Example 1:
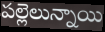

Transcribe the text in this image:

పల్లెలున్నాయి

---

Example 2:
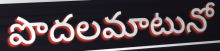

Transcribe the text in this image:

పొదలమాటునో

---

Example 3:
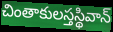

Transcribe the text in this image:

చింతాకులస్తస్థివాన్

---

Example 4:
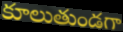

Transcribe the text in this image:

కూలుతుండగా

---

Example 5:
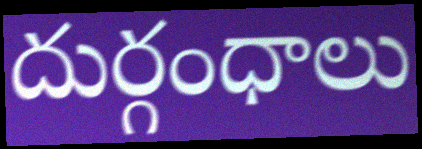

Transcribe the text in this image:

దుర్గంధాలు